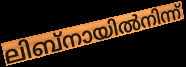
ലിബ്നായിൽനിന്ന്